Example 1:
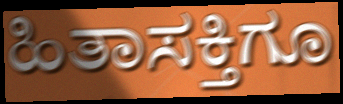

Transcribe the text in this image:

ಹಿತಾಸಕ್ತಿಗೂ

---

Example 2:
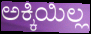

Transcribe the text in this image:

ಅಕ್ಕಿಯಿಲ್ಲ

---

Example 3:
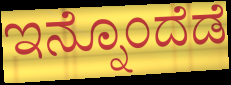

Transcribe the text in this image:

ಇನ್ನೊಂದೆಡೆ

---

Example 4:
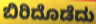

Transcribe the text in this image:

ಬಿರಿದೊಡೆದು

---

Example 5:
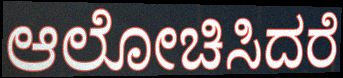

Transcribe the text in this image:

ಆಲೋಚಿಸಿದರೆ